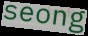
seong